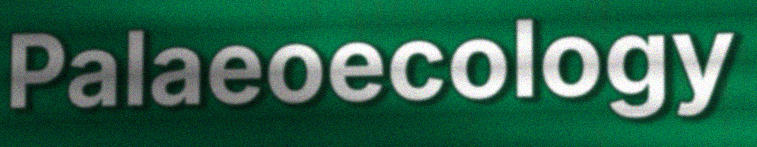
Palaeoecology